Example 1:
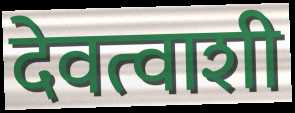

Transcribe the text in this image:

देवत्वाशी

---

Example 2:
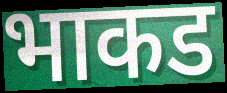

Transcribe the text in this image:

भाकड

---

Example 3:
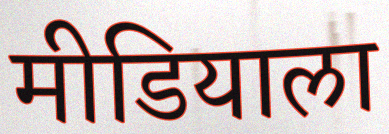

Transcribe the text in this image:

मीडियाला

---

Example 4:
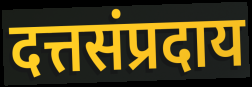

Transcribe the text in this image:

दत्तसंप्रदाय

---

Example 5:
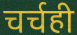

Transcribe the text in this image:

चर्चही